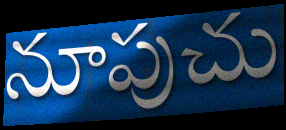
నూపుచు